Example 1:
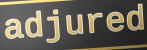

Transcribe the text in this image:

adjured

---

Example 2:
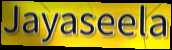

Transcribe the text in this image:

Jayaseela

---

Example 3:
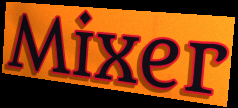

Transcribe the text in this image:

Mixer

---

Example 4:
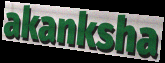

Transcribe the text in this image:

akanksha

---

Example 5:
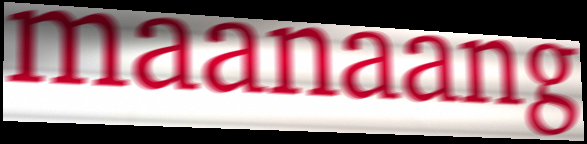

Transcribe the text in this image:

maanaang